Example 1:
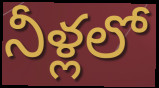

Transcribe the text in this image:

నీళ్లలో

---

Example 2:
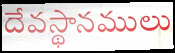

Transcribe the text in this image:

దేవస్థానములు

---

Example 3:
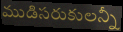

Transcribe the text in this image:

ముడిసరుకులన్నీ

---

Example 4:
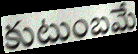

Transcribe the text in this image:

కుటుంబమే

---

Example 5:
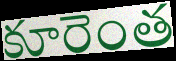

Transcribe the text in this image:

కూరెంత